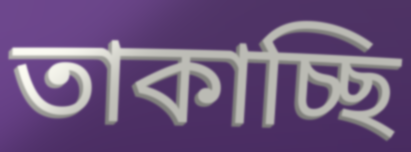
তাকাচ্ছি